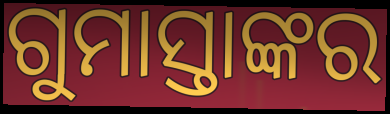
ଗୁମାସ୍ତାଙ୍କର